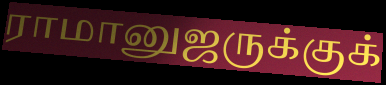
ராமானுஜருக்குக்